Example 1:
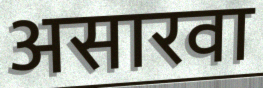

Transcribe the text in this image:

असारवा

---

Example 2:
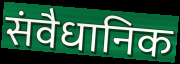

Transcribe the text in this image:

संवैधानिक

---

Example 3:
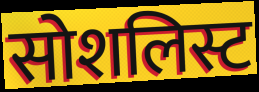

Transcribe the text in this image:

सोशलिस्ट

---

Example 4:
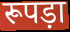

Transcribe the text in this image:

रूपड़ा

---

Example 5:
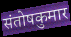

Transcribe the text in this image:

संतोषकुमार